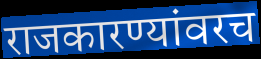
राजकारण्यांवरच